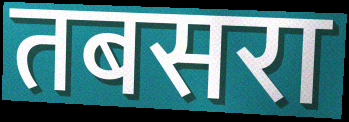
तबसरा